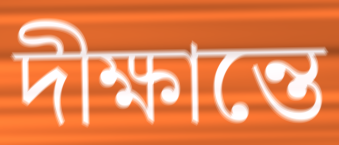
দীক্ষান্তে